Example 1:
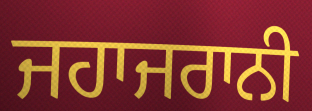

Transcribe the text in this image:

ਜਹਾਜਰਾਨੀ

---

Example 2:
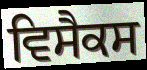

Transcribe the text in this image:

ਵਿਸੈਕਸ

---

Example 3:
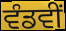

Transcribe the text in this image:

ਵੰਡਵੀਂ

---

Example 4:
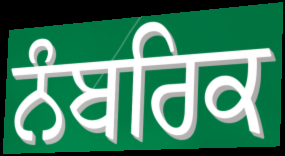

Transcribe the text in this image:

ਨੰਬਰਿਕ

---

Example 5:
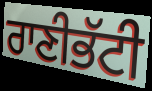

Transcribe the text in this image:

ਰਾਣੀਭੱਟੀ